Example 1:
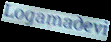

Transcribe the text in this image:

Logamadevi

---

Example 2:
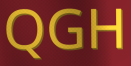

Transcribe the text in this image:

QGH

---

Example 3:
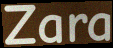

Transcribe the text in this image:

Zara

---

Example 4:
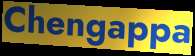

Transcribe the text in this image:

Chengappa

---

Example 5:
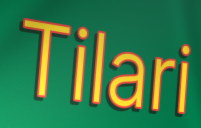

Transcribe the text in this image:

Tilari